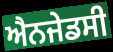
ਐਨਜੇਡਸੀ